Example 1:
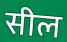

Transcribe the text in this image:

सील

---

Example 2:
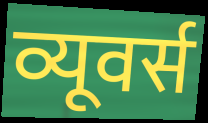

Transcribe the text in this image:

व्यूवर्स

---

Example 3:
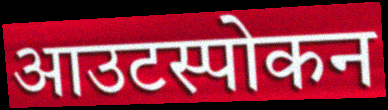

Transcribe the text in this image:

आउटस्पोकन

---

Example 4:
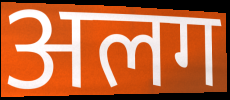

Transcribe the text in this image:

अलग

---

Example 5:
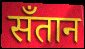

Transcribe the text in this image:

सँतान